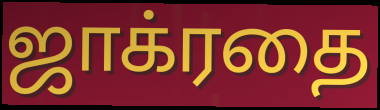
ஜாக்ரதை